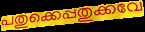
പതുക്കെപ്പതുക്കവേ